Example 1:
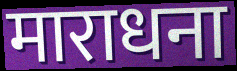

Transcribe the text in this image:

माराधना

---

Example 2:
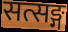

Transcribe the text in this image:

सत्सङ्ग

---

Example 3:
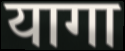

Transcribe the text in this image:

यागा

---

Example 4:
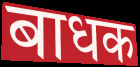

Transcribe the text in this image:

बाधक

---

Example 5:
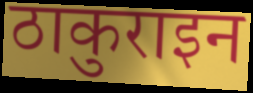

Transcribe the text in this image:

ठाकुराइन